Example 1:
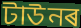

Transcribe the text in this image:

টাউনৰ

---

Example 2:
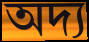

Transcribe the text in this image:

অদ্য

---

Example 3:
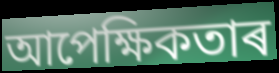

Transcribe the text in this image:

আপেক্ষিকতাৰ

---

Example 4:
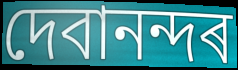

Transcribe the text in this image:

দেবানন্দৰ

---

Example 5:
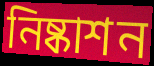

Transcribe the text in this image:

নিষ্কাশন